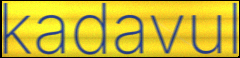
kadavul